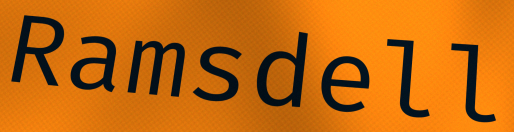
Ramsdell